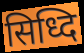
सिध्दि